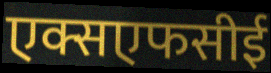
एक्सएफसीई